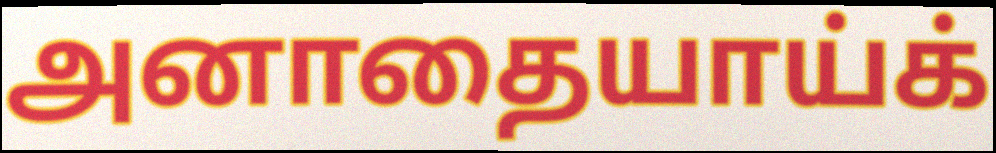
அனாதையாய்க்